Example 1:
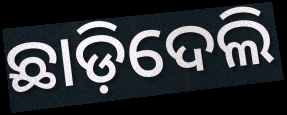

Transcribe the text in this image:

ଛାଡ଼ିଦେଲି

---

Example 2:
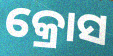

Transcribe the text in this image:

କ୍ରୋସ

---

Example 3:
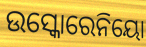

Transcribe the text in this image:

ଉସ୍କୋରେନିୟୋ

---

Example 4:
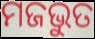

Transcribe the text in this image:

ମଜଭୁତ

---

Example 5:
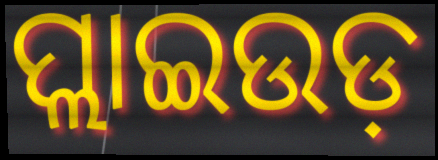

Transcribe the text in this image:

ପ୍ଲାଇଉଡ଼